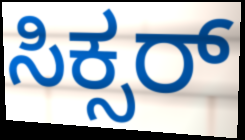
ಸಿಕ್ಸರ್